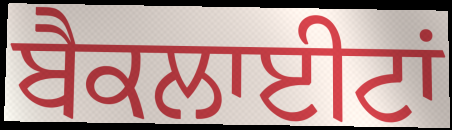
ਬੈਕਲਾਈਟਾਂ